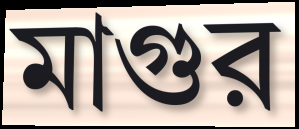
মাগুর